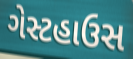
ગેસ્ટહાઉસ